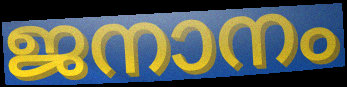
ജനാനം